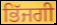
ਭਿੱਜਗੀ